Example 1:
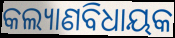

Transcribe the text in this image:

କଲ୍ୟାଣବିଧାୟକ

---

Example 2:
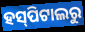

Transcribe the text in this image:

ହସ୍‌ପିଟାଲରୁ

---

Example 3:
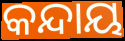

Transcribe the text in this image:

କନ୍ଦାୟ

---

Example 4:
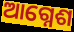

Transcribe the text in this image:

ଆଗ୍ନେଶ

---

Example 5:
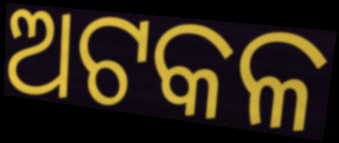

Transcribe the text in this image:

ଅଟକଳ